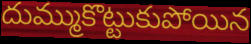
దుమ్ముకొట్టుకుపోయిన